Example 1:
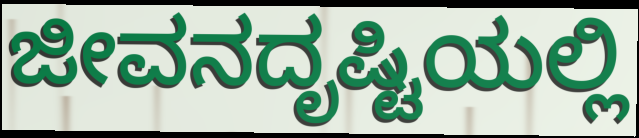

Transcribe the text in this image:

ಜೀವನದೃಷ್ಟಿಯಲ್ಲಿ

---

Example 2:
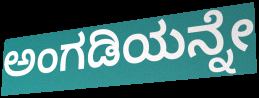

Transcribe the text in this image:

ಅಂಗಡಿಯನ್ನೇ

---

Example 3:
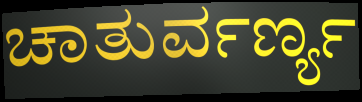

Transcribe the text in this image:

ಚಾತುರ್ವರ್ಣ್ಯ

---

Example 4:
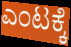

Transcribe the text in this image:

ಎಂಟಕ್ಕೆ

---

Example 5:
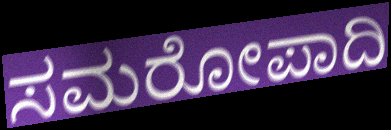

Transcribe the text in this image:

ಸಮರೋಪಾದಿ